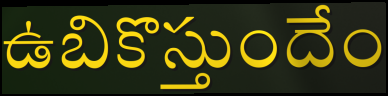
ఉబికొస్తుందేం